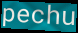
pechu